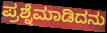
ಪ್ರಶ್ನೆಮಾಡಿದನು